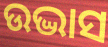
ଉଦ୍ଭାସ